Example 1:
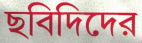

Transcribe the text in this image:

ছবিদিদের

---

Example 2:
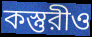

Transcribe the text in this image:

কস্তুরীও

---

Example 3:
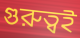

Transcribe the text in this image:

গুরুত্বই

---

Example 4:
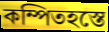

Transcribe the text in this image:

কম্পিতহস্তে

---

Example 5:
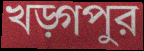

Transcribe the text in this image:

খড়্গপুর